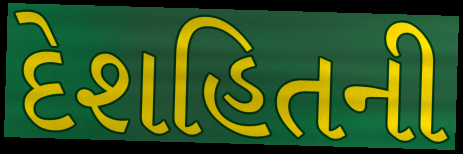
દેશહિતની